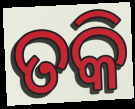
ତକି